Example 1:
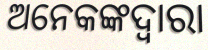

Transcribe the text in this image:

ଅନେକଙ୍କଦ୍ୱାରା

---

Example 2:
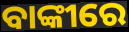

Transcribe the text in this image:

ବାଙ୍କୀରେ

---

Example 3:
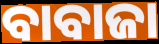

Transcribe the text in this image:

ବାବାଜା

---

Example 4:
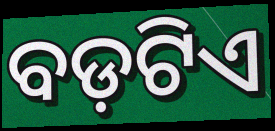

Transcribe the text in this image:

ବଡ଼ଟିଏ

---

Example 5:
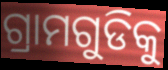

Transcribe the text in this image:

ଗ୍ରାମଗୁଡିକୁ